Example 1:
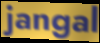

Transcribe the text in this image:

jangal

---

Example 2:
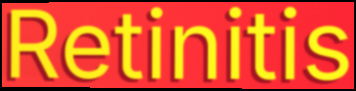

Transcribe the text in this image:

Retinitis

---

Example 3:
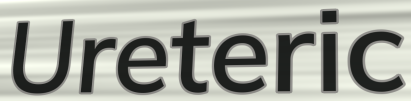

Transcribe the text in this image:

Ureteric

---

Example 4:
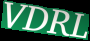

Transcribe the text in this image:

VDRL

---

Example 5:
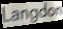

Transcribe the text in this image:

Langdon